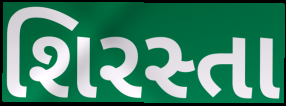
શિરસ્તા